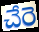
చేరె